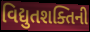
વિદ્યુતશક્તિની